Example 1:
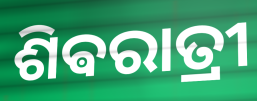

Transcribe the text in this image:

ଶିଵରାତ୍ରୀ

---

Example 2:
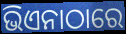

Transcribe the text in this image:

ଭିଏନାଠାରେ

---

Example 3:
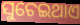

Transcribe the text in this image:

ସୁଚେଇଥାଏ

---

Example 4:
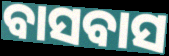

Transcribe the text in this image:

ବାସବାସ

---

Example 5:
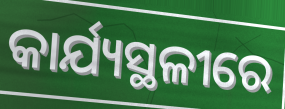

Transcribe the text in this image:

କାର୍ଯ୍ୟସ୍ଥଳୀରେ